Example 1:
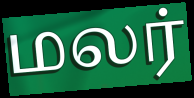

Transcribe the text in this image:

மலர்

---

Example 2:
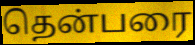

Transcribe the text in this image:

தென்பரை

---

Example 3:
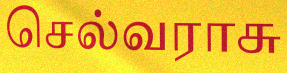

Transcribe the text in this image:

செல்வராசு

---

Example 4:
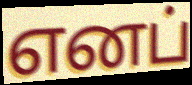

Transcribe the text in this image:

எனப்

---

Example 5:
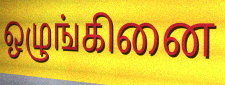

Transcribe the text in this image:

ஒழுங்கினை